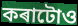
কৰাটোও